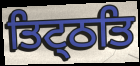
ਤਿਟ੍ਠਤਿ